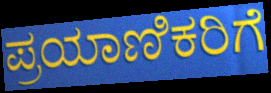
ಪ್ರಯಾಣಿಕರಿಗೆ